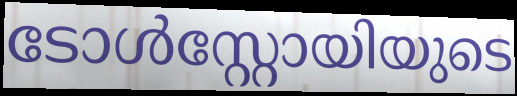
ടോൾസ്റ്റോയിയുടെ